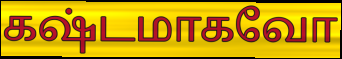
கஷ்டமாகவோ